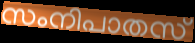
സംനിപാതസ്